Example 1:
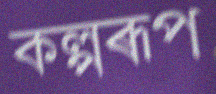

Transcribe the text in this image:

কল্পৰূপ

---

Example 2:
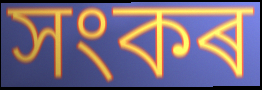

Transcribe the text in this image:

সংকৰ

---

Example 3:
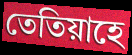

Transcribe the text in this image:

তেতিয়াহে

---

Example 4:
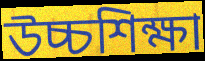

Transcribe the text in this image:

উচ্চশিক্ষা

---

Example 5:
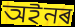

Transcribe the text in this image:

অইনৰ